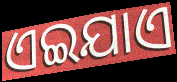
ଏଇଯାଏ